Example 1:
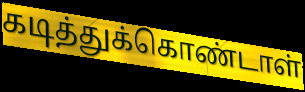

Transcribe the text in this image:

கடித்துக்கொண்டாள்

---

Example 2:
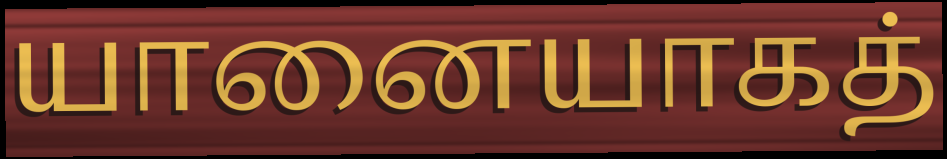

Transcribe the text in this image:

யானையாகத்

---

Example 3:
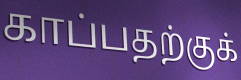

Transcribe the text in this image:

காப்பதற்குக்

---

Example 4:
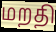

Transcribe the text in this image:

மறதி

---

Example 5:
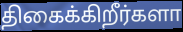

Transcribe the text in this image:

திகைக்கிறீர்களா